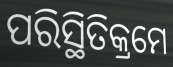
ପରିସ୍ଥିତିକ୍ରମେ